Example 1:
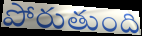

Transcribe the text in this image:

పోరుతుంది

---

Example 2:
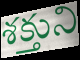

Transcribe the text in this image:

శక్తుని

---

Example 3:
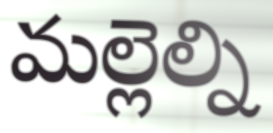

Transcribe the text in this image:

మల్లెల్ని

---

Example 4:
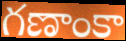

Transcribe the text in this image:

గణాంకా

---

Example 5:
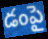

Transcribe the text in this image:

డంపై